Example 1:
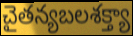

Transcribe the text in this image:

చైతన్యబలశక్త్యా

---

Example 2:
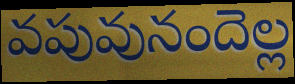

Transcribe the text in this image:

వపువునందెల్ల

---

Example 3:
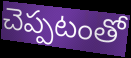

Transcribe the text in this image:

చెప్పటంతో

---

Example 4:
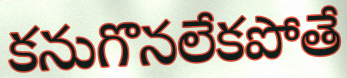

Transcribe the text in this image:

కనుగొనలేకపోతే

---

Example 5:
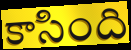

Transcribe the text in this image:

కాసింది